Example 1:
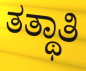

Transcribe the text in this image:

ತತ್ಥಾತಿ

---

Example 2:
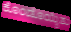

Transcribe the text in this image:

ಕೊಂಡೊಯ್ಯಿತು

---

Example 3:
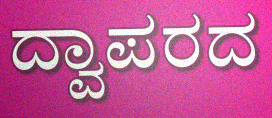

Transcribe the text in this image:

ದ್ವಾಪರದ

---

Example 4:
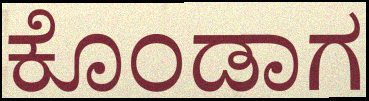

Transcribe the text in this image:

ಕೊಂಡಾಗ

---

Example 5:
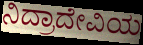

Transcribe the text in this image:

ನಿದ್ರಾದೇವಿಯ